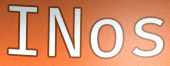
INos